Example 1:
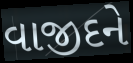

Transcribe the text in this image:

વાજીદને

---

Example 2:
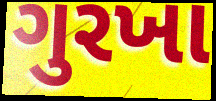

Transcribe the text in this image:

ગુરખા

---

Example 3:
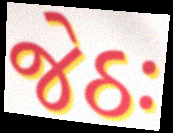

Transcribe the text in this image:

જેઠઃ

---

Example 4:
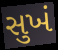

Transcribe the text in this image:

સુખં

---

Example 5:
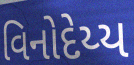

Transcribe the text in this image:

વિનોદેય્ય